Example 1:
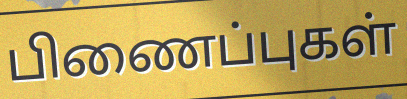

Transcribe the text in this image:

பிணைப்புகள்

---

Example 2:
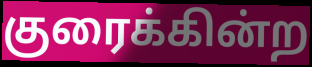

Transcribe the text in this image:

குரைக்கின்ற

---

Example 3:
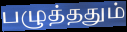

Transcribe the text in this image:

பழுத்ததும்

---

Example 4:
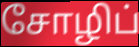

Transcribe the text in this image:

சோழிப்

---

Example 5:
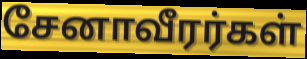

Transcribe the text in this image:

சேனாவீரர்கள்